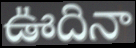
ఊదినా